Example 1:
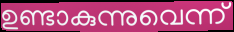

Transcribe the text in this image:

ഉണ്ടാകുന്നുവെന്ന്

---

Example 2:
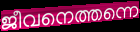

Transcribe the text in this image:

ജീവനെത്തന്നെ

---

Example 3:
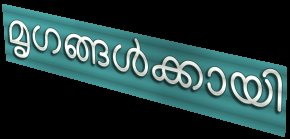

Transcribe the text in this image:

മൃഗങ്ങൾക്കായി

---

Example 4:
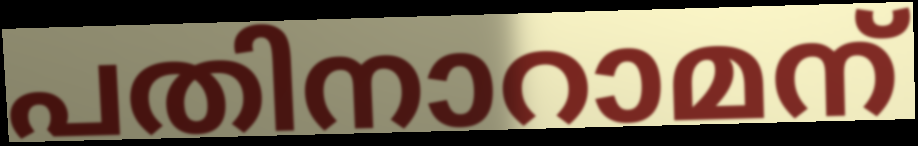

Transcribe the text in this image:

പതിനാറാമന്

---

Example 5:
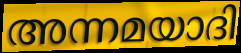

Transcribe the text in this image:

അന്നമയാദി